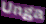
Unga